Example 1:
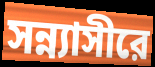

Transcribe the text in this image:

সন্ন্যাসীরে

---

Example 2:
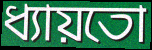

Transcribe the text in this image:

ধ্যায়তো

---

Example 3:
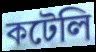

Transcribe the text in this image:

কটেলি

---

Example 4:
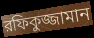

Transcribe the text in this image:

রফিকুজ্জামান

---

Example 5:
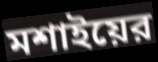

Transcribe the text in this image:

মশাইয়ের